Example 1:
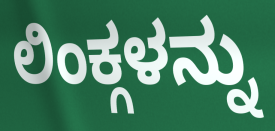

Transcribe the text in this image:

ಲಿಂಕ್ಗಳನ್ನು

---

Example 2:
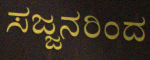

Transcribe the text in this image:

ಸಜ್ಜನರಿಂದ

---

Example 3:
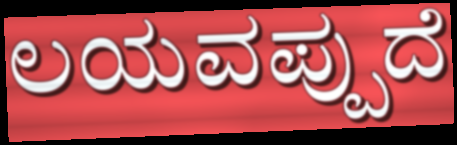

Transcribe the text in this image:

ಲಯವಪ್ಪುದೆ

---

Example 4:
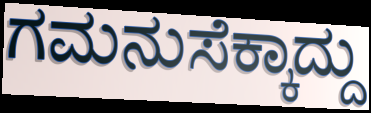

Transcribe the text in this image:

ಗಮನುಸೆಕ್ಕಾದ್ದು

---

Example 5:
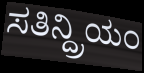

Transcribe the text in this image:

ಸತಿನ್ದ್ರಿಯಂ